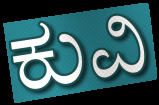
ಕುವಿ